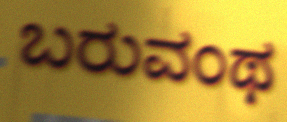
ಬರುವಂಥ